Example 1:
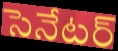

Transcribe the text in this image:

సెనేటర్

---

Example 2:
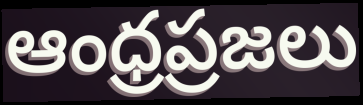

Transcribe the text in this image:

ఆంధ్రప్రజలు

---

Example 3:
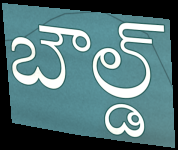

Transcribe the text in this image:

బౌల్డ్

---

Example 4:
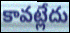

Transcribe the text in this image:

కావట్లేదు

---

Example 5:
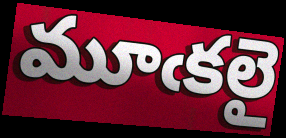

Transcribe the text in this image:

మూఁకలై